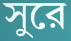
সুরে